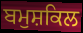
ਬਮੁਸ਼ਕਿਲ